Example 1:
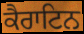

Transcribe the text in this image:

ਕੈਰਾਟਿਨ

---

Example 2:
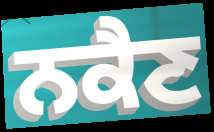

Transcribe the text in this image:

ਨਕੈਣ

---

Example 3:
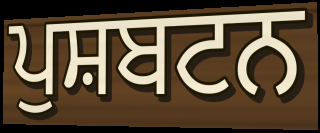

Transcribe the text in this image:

ਪੁਸ਼ਬਟਨ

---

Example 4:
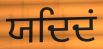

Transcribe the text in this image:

ਯਦਿਦਂ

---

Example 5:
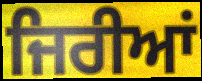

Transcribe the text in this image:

ਜਿਰੀਆਂ